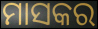
ମାସକର